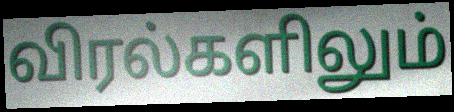
விரல்களிலும்